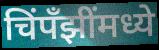
चिंपँझींमध्ये